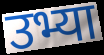
उभ्या